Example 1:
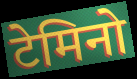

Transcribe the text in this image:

टेमिनो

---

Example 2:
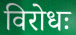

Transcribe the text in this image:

विरोधः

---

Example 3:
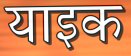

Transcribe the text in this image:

याइक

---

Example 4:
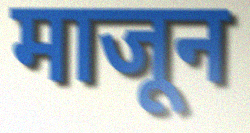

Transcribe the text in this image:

माजून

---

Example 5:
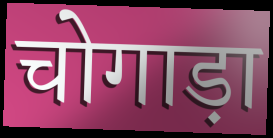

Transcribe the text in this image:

चोगाड़ा